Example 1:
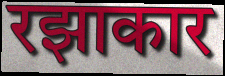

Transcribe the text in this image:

रझाकार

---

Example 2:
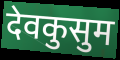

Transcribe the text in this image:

देवकुसुम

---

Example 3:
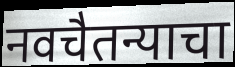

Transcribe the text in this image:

नवचैतन्याचा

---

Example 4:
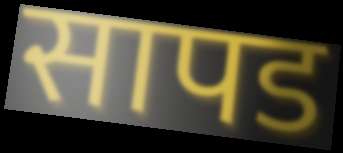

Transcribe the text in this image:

सापड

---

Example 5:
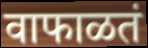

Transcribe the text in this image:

वाफाळतं